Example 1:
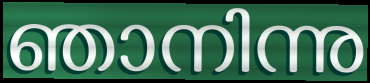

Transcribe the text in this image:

ഞാനിന്നു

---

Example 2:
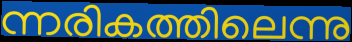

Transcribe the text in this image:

ന്നരികത്തിലെന്നു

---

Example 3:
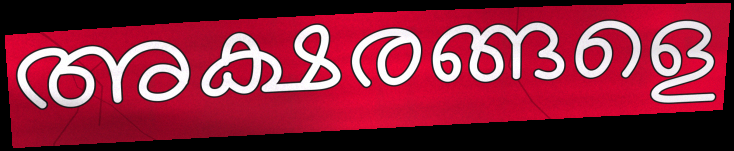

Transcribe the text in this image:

അക്ഷരങ്ങളെ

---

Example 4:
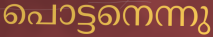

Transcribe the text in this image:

പൊട്ടനെന്നു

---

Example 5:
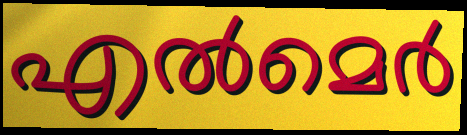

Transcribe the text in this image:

എൽമെർ